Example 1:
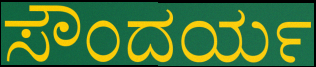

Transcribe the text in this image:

ಸೌಂದರ್ಯ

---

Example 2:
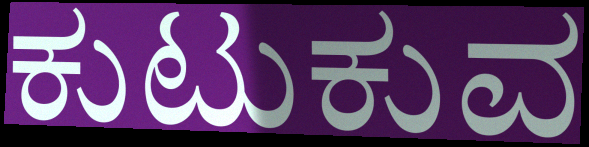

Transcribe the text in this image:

ಕುಟುಕುವ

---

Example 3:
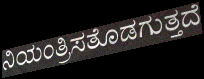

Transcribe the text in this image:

ನಿಯಂತ್ರಿಸತೊಡಗುತ್ತದೆ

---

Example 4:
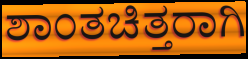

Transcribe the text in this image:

ಶಾಂತಚಿತ್ತರಾಗಿ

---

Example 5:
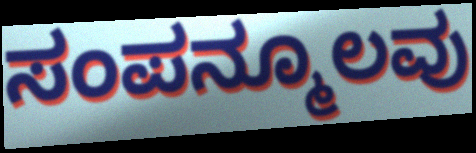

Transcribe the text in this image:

ಸಂಪನ್ಮೂಲವು